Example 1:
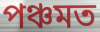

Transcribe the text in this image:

পঞ্চমত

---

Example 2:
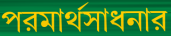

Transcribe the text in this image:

পরমার্থসাধনার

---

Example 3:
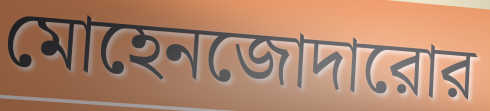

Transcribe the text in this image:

মোহেনজোদারোর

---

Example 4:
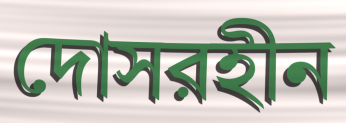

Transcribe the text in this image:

দোসরহীন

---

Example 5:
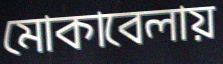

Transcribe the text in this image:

মোকাবেলায়